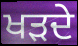
ਖੜਦੇ